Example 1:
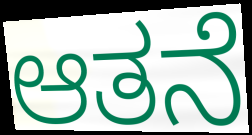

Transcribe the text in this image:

ಆತನೆ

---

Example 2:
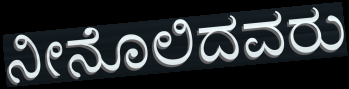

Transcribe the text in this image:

ನೀನೊಲಿದವರು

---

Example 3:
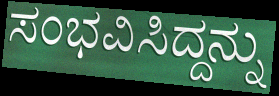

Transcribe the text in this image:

ಸಂಭವಿಸಿದ್ದನ್ನು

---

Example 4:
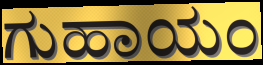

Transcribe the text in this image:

ಗುಹಾಯಂ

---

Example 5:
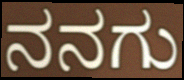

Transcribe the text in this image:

ನನಗು